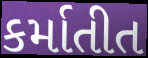
કર્માતીત